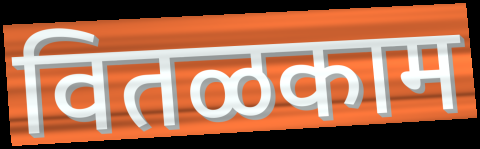
वितळकाम